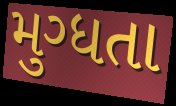
મુગ્ધતા